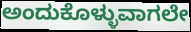
ಅಂದುಕೊಳ್ಳುವಾಗಲೇ